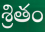
శ్రితం